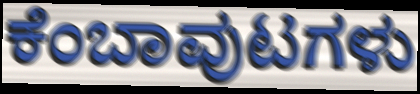
ಕೆಂಬಾವುಟಗಳು